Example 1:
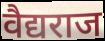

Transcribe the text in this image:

वैद्यराज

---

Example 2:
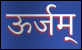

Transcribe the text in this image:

ऊर्जम्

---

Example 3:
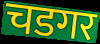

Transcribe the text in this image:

चडगर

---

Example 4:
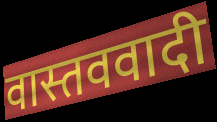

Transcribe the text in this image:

वास्तववादी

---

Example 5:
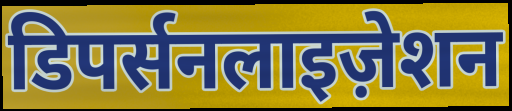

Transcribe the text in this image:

डिपर्सनलाइज़ेशन